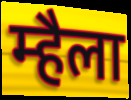
म्हैला